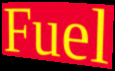
Fuel